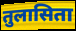
तुलासिता